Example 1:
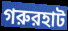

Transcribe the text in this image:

গরুরহাট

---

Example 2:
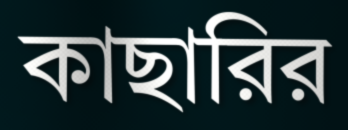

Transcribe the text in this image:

কাছারির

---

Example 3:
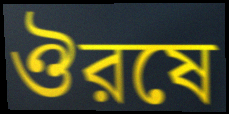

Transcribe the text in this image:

ঔরষে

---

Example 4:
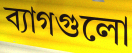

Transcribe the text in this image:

ব্যাগগুলো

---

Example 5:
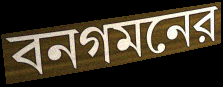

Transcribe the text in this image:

বনগমনের